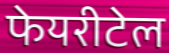
फेयरीटेल